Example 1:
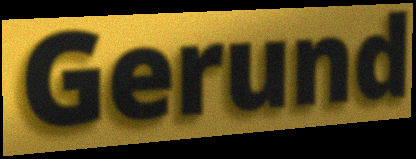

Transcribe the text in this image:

Gerund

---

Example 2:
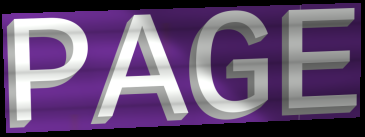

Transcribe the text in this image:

PAGE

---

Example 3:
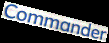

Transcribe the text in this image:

Commander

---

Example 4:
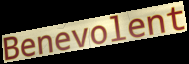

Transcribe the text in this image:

Benevolent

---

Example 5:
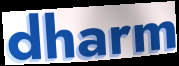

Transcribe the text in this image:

dharm